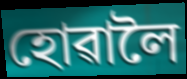
হোৱালৈ